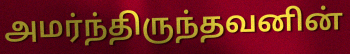
அமர்ந்திருந்தவனின்